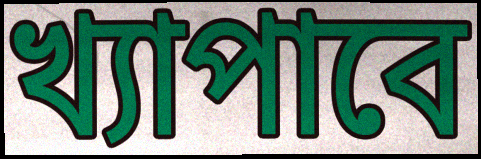
খ্যাপাবে